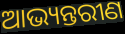
ଆଭ୍ୟନ୍ତରୀଣ